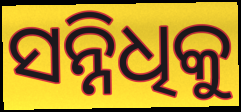
ସନ୍ନିଧିକୁ